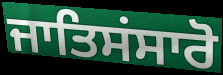
ਜਾਤਿਸਂਸਾਰੋ